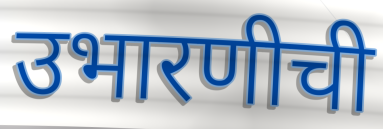
उभारणीची